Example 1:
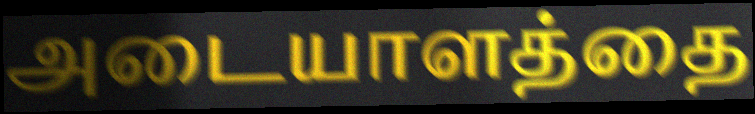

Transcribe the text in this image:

அடையாளத்தை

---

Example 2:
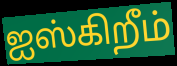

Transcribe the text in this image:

ஐஸ்கிறீம்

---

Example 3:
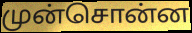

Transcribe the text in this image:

முன்சொன்ன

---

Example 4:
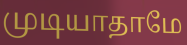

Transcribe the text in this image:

முடியாதாமே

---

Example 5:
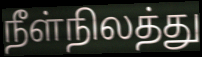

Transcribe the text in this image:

நீள்நிலத்து